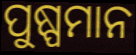
ପୁଷ୍ପମାନ